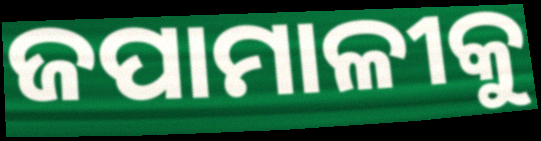
ଜପାମାଳୀକୁ